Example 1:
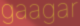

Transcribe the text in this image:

gaagar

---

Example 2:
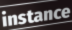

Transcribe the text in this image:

instance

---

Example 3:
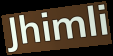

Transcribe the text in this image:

Jhimli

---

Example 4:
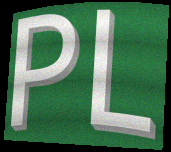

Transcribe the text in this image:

PL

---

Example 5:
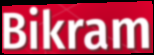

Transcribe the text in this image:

Bikram